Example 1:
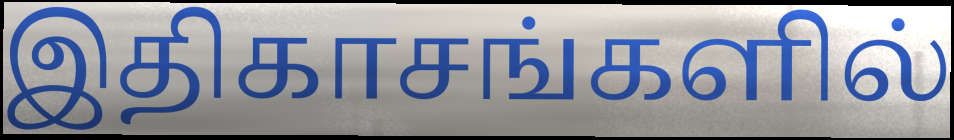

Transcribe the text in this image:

இதிகாசங்களில்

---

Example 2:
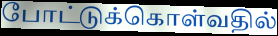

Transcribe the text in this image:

போட்டுக்கொள்வதில்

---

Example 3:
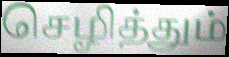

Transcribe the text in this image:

செழித்தும்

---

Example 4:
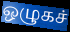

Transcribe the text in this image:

ஒழுகச்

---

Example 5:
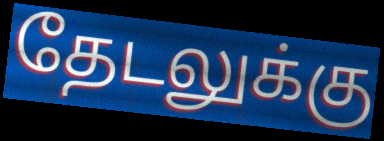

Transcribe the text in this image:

தேடலுக்கு